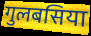
गुलबसिया